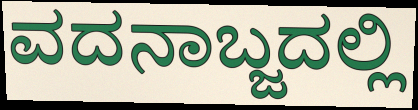
ವದನಾಬ್ಜದಲ್ಲಿ